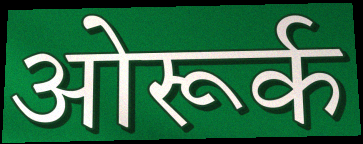
ओरूर्क